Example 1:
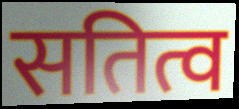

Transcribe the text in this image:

सतित्व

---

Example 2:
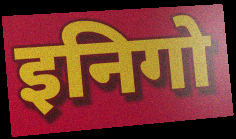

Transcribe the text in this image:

इनिगो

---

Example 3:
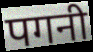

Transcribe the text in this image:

पगनी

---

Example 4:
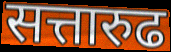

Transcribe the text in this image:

सत्तारुढ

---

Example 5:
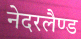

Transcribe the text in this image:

नेदरलैण्ड